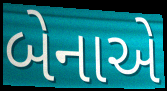
બેનાએ